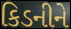
કિડનીને